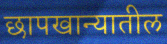
छापखान्यातील